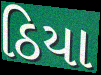
ઠિયા